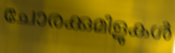
ചോരക്കുമിളുകൾ